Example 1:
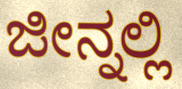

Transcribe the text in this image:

ಜೀನ್ನಲ್ಲಿ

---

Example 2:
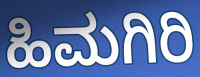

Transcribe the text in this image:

ಹಿಮಗಿರಿ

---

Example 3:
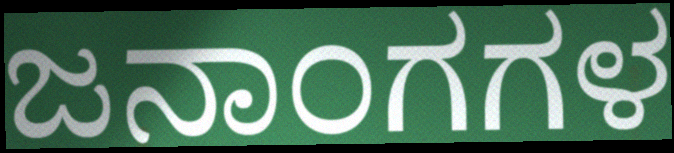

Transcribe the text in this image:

ಜನಾಂಗಗಳ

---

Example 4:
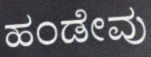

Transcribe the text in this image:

ಹಂಡೇವು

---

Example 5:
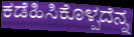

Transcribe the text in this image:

ಕಡೆಹಿಸಿಕೊಳ್ಪದೆನ್ನ